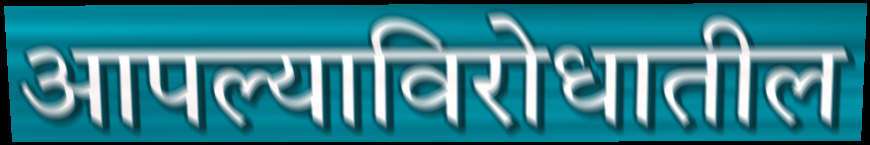
आपल्याविरोधातील